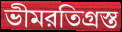
ভীমরতিগ্রস্ত